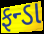
ફન્ડા